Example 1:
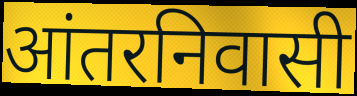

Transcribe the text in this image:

आंतरनिवासी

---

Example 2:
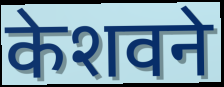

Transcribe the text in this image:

केशवने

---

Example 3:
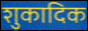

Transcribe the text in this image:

शुकादिक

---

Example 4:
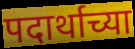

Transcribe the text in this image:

पदार्थाच्या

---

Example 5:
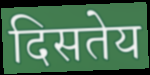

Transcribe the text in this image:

दिसतेय